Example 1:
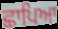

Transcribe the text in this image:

ਛਾਪਿਆ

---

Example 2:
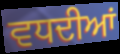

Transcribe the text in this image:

ਵਧਦੀਆਂ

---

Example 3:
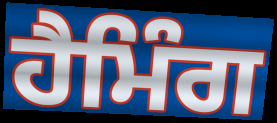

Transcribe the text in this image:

ਹੈਮਿੰਗ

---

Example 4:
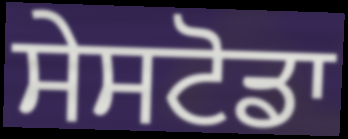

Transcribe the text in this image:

ਸੇਸਟੋਡਾ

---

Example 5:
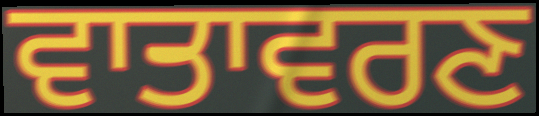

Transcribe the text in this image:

ਵਾਤਾਵਰਣ